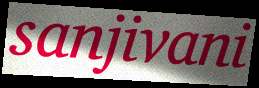
sanjivani